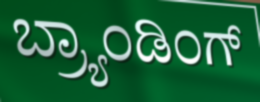
ಬ್ರ್ಯಾಂಡಿಂಗ್